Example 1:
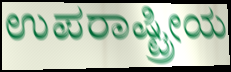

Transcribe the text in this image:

ಉಪರಾಷ್ಟ್ರೀಯ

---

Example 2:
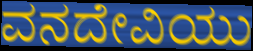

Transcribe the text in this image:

ವನದೇವಿಯು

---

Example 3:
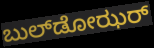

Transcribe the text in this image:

ಬುಲ್‌ಡೋಝರ್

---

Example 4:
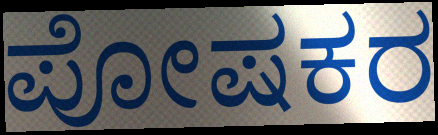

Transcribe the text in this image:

ಪೋಷಕರ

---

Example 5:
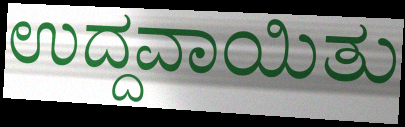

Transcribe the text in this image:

ಉದ್ದವಾಯಿತು